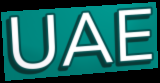
UAE